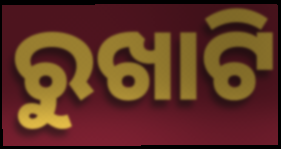
ରୁଖାଟି